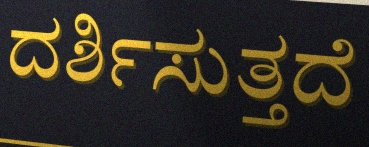
ದರ್ಶಿಸುತ್ತದೆ